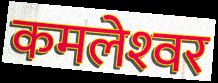
कमलेश्‍वर